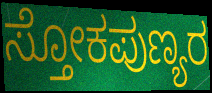
ಸ್ತೋಕಪುಣ್ಯರ